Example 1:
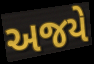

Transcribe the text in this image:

અજયે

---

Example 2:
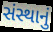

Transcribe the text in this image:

સંસ્થાનું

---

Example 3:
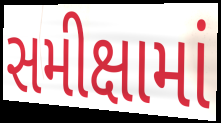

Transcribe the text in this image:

સમીક્ષામાં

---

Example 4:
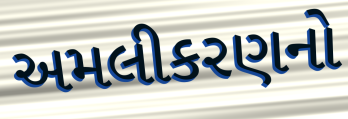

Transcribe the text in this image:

અમલીકરણનો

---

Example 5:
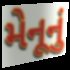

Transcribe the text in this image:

મેનૂનું